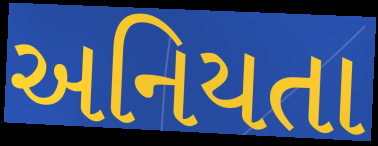
અનિયતા